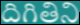
దిగితిని